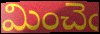
మించెఁ